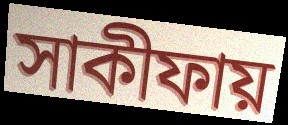
সাকীফায়